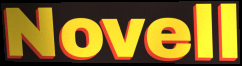
Novell